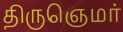
திருஞெமர்